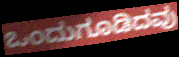
ಒಂದುಗೂಡಿದವು